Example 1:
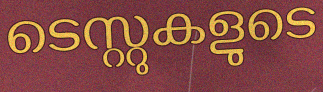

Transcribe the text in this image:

ടെസ്റ്റുകളുടെ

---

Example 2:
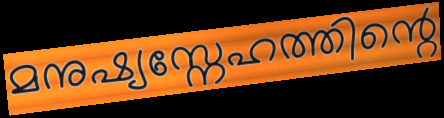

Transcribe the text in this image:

മനുഷ്യസ്നേഹത്തിന്റെ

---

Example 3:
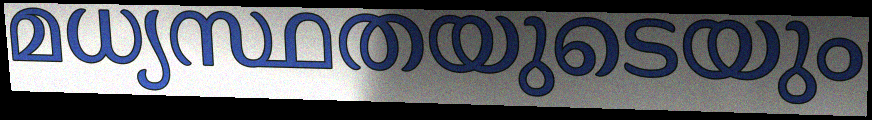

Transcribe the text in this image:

മധ്യസ്ഥതയുടെയും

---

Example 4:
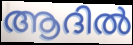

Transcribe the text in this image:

ആദിൽ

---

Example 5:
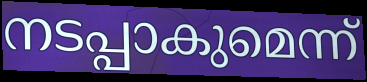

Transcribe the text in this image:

നടപ്പാകുമെന്ന്